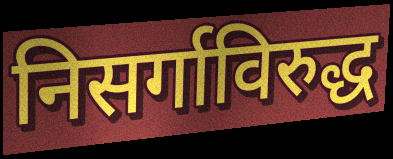
निसर्गाविरुद्ध